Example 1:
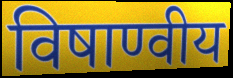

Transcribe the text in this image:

विषाण्वीय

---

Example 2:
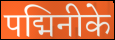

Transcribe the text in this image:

पद्मिनीके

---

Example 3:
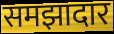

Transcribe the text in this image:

समझादार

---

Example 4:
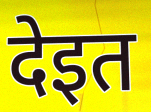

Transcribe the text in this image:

देइत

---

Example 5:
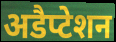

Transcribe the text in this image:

अडैप्टेशन